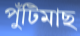
পুঁটিমাছ